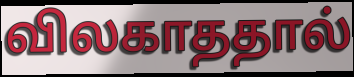
விலகாததால்